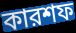
কারশফ